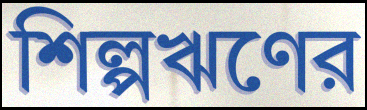
শিল্পঋণের